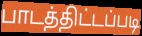
பாடத்திட்டப்படி